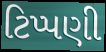
ટિપ્પણી